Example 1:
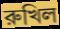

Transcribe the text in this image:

রুখিল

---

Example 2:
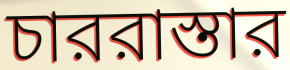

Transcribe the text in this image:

চাররাস্তার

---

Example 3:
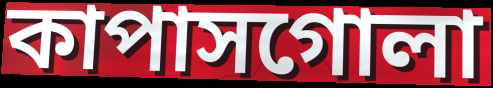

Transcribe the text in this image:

কাপাসগোলা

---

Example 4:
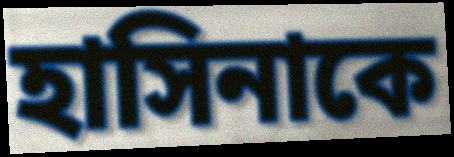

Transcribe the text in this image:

হাসিনাকে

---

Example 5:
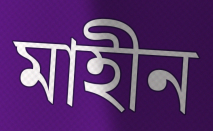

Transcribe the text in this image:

মাহীন